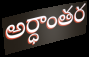
అర్ధాంతర